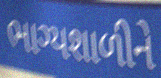
ભાગ્યશાળીને